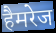
हैमरेज